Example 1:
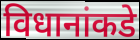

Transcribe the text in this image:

विधानांकडे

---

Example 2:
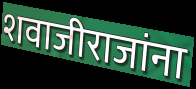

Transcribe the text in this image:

शवाजीराजांना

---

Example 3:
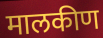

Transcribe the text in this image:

मालकीण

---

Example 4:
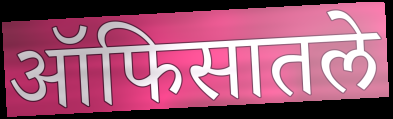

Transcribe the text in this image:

ऑफिसातले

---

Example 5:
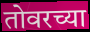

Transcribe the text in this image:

तोवरच्या